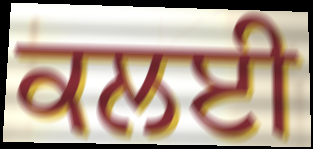
ਕਲਈ